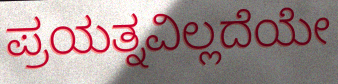
ಪ್ರಯತ್ನವಿಲ್ಲದೆಯೇ